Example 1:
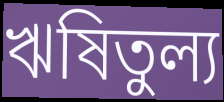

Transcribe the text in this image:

ঋষিতুল্য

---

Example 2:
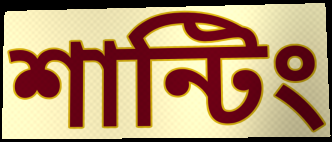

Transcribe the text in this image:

শান্টিং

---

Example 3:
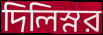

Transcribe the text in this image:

দিলিস্নর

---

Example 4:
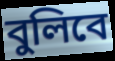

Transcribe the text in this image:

বুলিবে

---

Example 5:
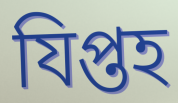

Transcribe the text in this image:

যিপ্তহ